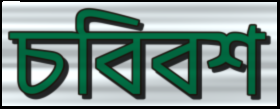
চবিবশ